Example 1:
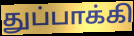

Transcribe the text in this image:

துப்பாக்கி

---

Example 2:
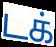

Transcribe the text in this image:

டக்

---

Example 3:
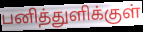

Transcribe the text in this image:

பனித்துளிக்குள்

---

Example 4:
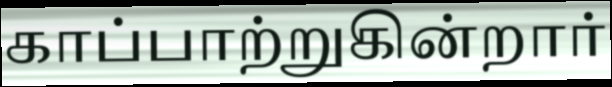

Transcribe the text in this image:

காப்பாற்றுகின்றார்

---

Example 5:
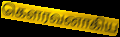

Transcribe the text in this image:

கௌரவனாகிய